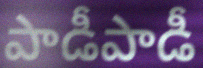
పాడీపాడీ